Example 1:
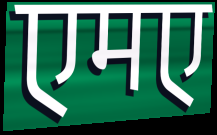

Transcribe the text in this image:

एमए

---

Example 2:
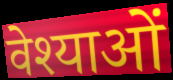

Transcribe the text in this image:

वेश्याओं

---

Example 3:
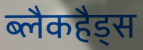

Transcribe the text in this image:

ब्लैकहैड्स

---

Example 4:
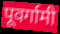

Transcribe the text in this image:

पूवर्गामी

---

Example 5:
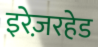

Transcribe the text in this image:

इरेज़रहेड